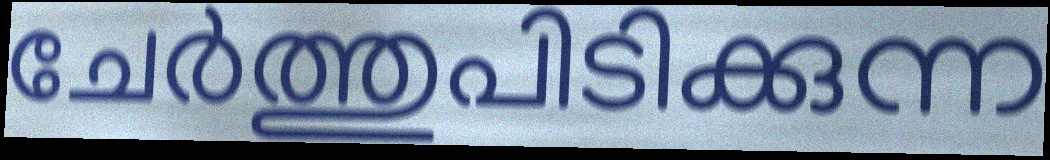
ചേർത്തുപിടിക്കുന്ന